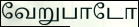
வேறுபாடோ